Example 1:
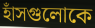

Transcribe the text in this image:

হাঁসগুলোকে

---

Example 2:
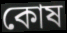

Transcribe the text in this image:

কোষ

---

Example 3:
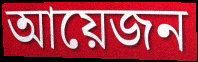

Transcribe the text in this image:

আয়েজন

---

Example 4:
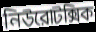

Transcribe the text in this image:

নিউরোটক্সিক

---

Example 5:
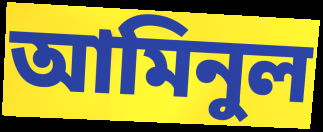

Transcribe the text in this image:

আমিনুল